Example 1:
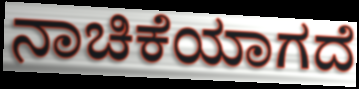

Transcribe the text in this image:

ನಾಚಿಕೆಯಾಗದೆ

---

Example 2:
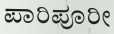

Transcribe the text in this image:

ಪಾರಿಪೂರೀ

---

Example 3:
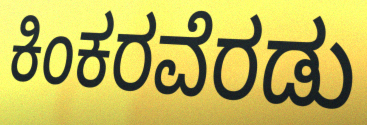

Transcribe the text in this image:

ಕಿಂಕರವೆರಡು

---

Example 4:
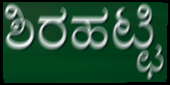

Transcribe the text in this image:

ಶಿರಹಟ್ಟಿ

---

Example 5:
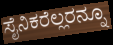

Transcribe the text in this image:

ಸೈನಿಕರೆಲ್ಲರನ್ನೂ